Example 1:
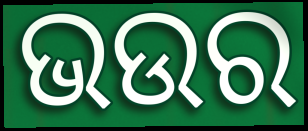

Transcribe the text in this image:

ଭଉର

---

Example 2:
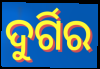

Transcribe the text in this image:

ଦୁର୍ଗିର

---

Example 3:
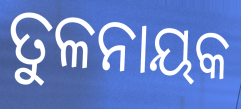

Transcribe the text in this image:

ତୁଳନାୟକ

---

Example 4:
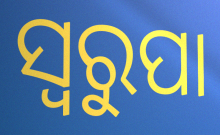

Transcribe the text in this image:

ସ୍ୱରୁପା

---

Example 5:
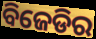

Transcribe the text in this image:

ବିଜେଡିର